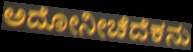
ಅದೋನೀಚೆದೆಕನು